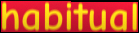
habitual